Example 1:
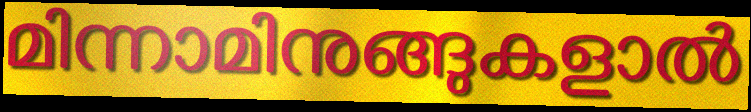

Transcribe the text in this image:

മിന്നാമിനുങ്ങുകളാൽ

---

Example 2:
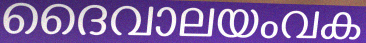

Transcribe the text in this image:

ദൈവാലയംവക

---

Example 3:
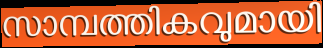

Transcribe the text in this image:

സാമ്പത്തികവുമായി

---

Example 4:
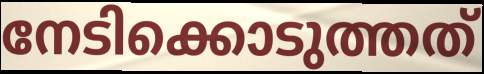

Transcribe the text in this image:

നേടിക്കൊടുത്തത്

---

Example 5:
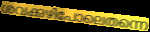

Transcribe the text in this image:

ശവക്കുഴിപോലെതന്നെ